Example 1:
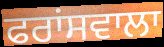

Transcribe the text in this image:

ਫਰਾਂਸਵਾਲਾ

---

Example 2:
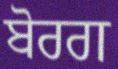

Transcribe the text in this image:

ਬੋਰਗ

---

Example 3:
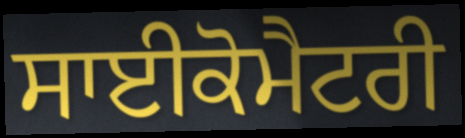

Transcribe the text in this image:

ਸਾਈਕੋਮੈਟਰੀ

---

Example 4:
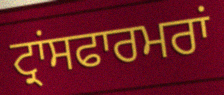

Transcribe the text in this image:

ਟ੍ਰਾਂਸਫਾਰਮਰਾਂ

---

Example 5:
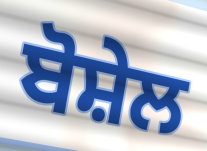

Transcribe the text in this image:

ਬੋਸ਼ੇਲ